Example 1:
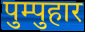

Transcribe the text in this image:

पुम्पुहार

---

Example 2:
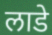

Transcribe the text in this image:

लाडे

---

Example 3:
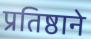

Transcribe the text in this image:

प्रतिष्ठाने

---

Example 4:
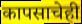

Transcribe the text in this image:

कापसाचेही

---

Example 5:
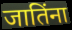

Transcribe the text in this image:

जातिंना